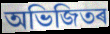
অভিজিতৰ